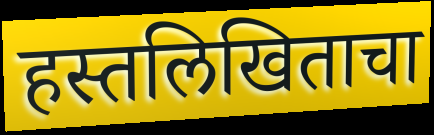
हस्तलिखिताचा